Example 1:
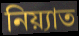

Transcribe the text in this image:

নিয়্যাত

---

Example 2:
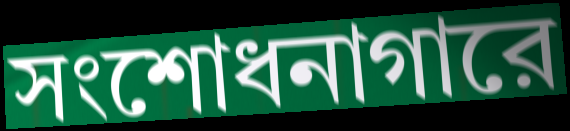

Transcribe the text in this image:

সংশোধনাগারে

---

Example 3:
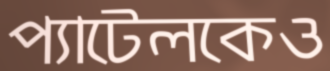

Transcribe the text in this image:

প্যাটেলকেও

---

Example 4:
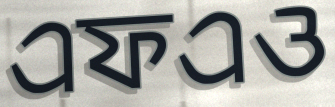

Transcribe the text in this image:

এফএও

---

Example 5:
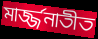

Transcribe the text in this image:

মার্জ্জনাতীত